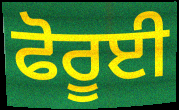
ਫੋਰੂਈ